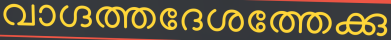
വാഗ്ദത്തദേശത്തേക്കു